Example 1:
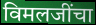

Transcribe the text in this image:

विमलजींचा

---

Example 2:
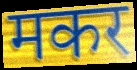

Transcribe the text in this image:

मकर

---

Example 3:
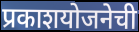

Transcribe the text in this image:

प्रकाशयोजनेची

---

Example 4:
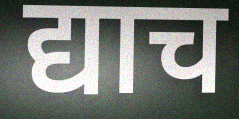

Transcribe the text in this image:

द्याच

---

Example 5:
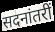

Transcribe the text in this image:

सदनांतरीं